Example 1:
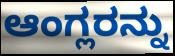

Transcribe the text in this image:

ಆಂಗ್ಲರನ್ನು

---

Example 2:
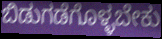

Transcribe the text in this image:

ಬಿಡುಗಡೆಗೊಳ್ಳಬೇಕು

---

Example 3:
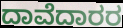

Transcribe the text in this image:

ದಾವೆದಾರರ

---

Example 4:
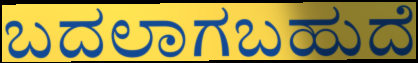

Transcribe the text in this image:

ಬದಲಾಗಬಹುದೆ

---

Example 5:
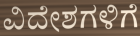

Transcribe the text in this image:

ವಿದೇಶಗಳಿಗೆ